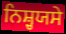
ਨਿਸ਼੍ਚਯਸੇ